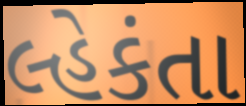
લ્હેકંતા